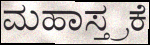
ಮಹಾಸ್ತ್ರಕೆ